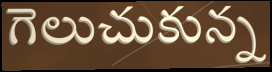
గెలుచుకున్న